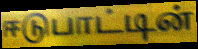
ஈடுபாட்டின்